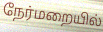
நேர்மறையில்